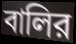
বালির